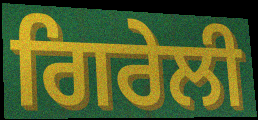
ਗਿਰੇਲੀ